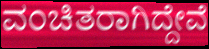
ವಂಚಿತರಾಗಿದ್ದೇವೆ